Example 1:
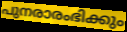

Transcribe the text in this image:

പുനരാരംഭിക്കും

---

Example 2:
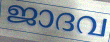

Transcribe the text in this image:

ജാദവ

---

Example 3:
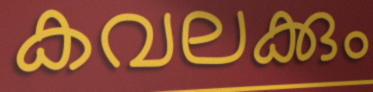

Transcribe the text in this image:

കവലക്കും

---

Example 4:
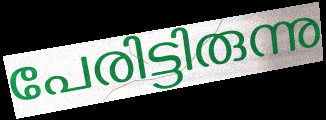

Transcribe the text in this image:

പേരിട്ടിരുന്നു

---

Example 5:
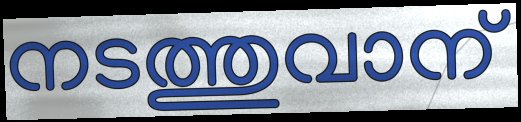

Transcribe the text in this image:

നടത്തുവാന്